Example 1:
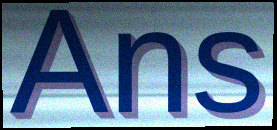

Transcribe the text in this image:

Ans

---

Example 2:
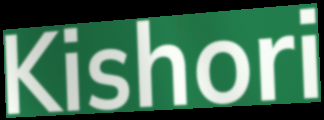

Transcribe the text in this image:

Kishori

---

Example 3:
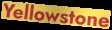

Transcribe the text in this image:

Yellowstone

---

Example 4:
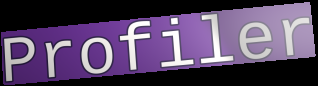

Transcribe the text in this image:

Profiler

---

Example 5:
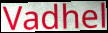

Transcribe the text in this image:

Vadhel